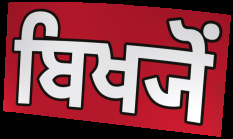
ਬਿਖ੍ਯੋਂ